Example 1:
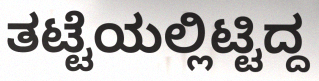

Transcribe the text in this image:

ತಟ್ಟೆಯಲ್ಲಿಟ್ಟಿದ್ದ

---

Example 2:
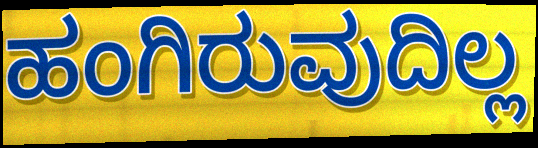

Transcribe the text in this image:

ಹಂಗಿರುವುದಿಲ್ಲ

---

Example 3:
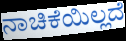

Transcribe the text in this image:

ನಾಚಿಕೆಯಿಲ್ಲದೆ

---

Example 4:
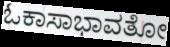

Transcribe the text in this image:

ಓಕಾಸಾಭಾವತೋ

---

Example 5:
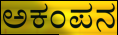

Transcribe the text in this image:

ಅಕಂಪನ